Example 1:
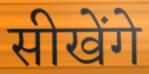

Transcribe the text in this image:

सीखेंगे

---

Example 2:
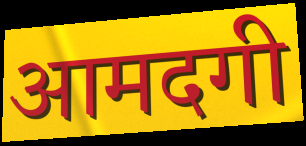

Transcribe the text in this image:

आमदगी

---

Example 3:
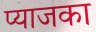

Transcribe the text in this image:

प्याजका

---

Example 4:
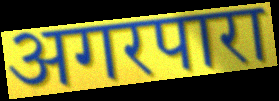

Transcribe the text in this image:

अगरपारा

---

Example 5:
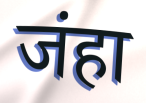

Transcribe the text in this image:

जंहा